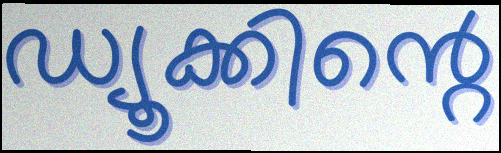
ഡ്യൂക്കിന്റെ